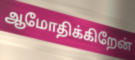
ஆமோதிக்கிறேன்